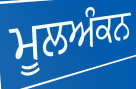
ਮੂਲਅੰਕਨ